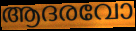
ആദരവോ